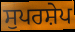
ਸੁਪਰਸ਼ੇਪ